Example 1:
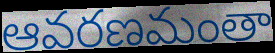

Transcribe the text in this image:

ఆవరణమంతా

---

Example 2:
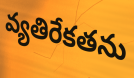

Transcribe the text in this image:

వ్యతిరేకతను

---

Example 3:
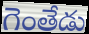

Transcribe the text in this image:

గెంతేడు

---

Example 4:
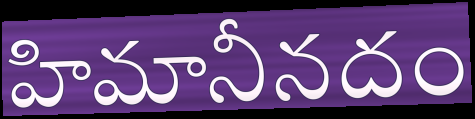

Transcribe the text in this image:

హిమానీనదం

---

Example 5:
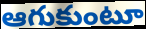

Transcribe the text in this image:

ఆగుకుంటూ